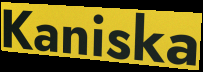
Kaniska